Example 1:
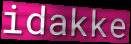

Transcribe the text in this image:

idakke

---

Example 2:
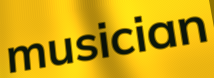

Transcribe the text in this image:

musician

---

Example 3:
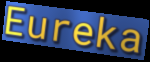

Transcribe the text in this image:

Eureka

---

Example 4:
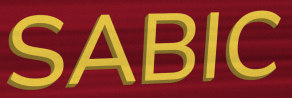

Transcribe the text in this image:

SABIC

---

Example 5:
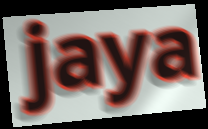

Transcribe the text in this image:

jaya